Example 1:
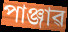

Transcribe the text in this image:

পাঞ্জাৱ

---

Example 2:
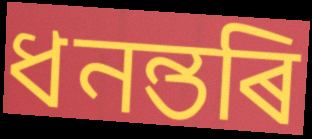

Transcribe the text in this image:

ধনন্তৰি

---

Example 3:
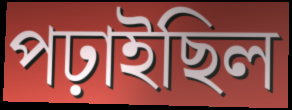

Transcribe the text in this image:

পঢ়াইছিল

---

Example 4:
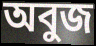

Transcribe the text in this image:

অবুজ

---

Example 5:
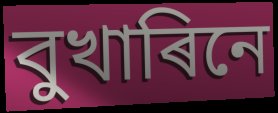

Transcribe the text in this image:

বুখাৰিনে